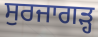
ਸੁਰਜਾਗੜ੍ਹ